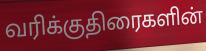
வரிக்குதிரைகளின்